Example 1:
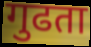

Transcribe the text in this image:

गुढता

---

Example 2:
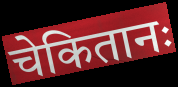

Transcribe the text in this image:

चेकितानः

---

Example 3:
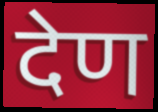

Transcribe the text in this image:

देण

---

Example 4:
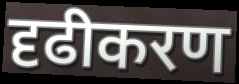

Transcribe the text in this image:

दृढीकरण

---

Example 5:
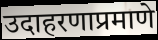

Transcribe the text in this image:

उदाहरणाप्रमाणे